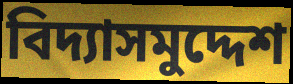
বিদ্যাসমুদ্দেশ